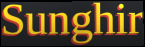
Sunghir